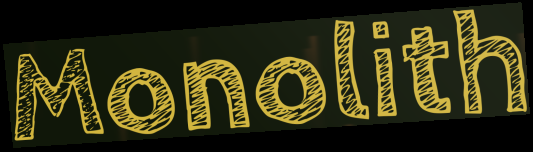
Monolith